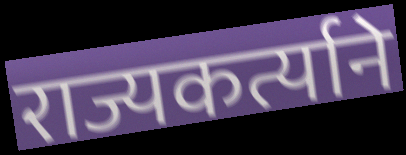
राज्यकर्त्याने